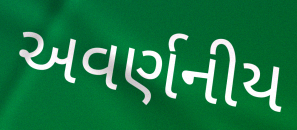
અવર્ણનીય